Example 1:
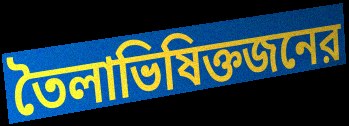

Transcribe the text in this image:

তৈলাভিষিক্তজনের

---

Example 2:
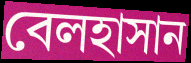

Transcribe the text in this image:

বেলহাসান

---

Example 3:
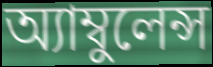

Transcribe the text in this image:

অ্যাম্বুলেন্স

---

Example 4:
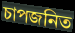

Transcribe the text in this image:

চাপজনিত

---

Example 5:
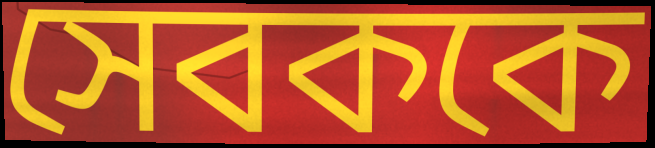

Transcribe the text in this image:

সেবককে